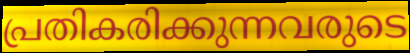
പ്രതികരിക്കുന്നവരുടെ